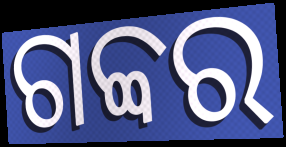
ଗବ୍ବର